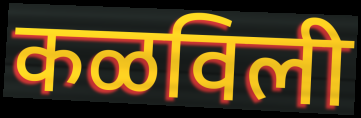
कळविली